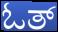
ಓತ್